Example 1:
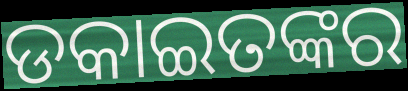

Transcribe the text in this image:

ଡକାଇତଙ୍କର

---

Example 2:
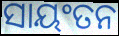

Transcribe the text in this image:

ସାୟଂତନ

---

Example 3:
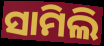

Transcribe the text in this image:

ସାମିଲି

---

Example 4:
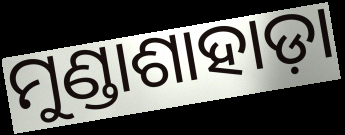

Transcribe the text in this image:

ମୁଣ୍ଡାଶାହାଡ଼ା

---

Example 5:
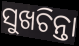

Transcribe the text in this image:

ସୁଖଚିନ୍ତା